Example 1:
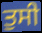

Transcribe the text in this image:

ਤੁਸੀ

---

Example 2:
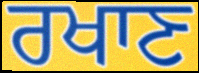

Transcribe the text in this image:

ਰਖਾਣ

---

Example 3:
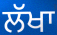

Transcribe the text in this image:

ਲੱਖਾ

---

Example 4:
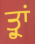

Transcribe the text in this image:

ਤ੍ਰ੍ਹਾਂ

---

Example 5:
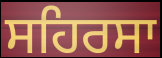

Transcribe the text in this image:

ਸਹਿਰਸਾ